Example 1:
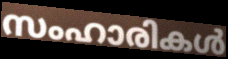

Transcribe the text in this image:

സംഹാരികൾ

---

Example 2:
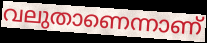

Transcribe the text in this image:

വലുതാണെന്നാണ്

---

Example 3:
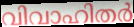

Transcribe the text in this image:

വിവാഹിതർ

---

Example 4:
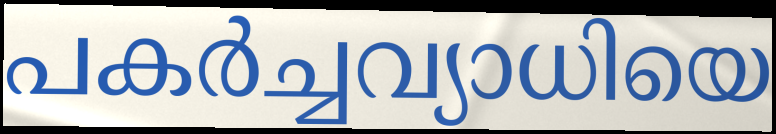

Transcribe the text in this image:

പകർച്ചവ്യാധിയെ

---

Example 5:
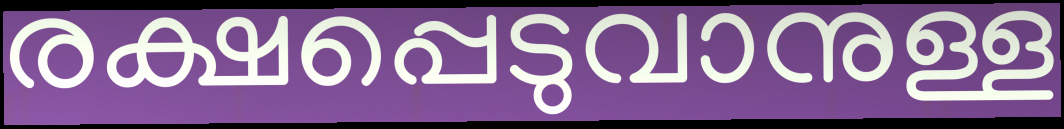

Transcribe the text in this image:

രക്ഷപ്പെടുവാനുള്ള